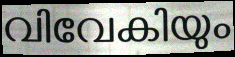
വിവേകിയും